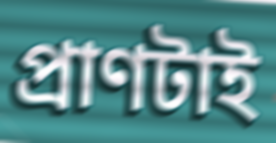
প্রাণটাই